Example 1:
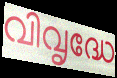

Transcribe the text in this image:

വിവൃദ്ധേ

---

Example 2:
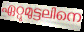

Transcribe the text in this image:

ഏറ്റുമുട്ടലിനെ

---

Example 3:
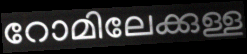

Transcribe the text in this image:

റോമിലേക്കുള്ള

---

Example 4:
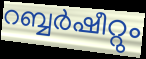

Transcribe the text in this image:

റബ്ബർഷീറ്റും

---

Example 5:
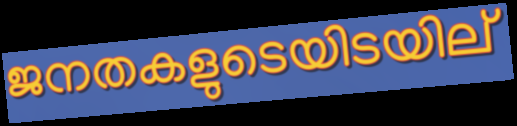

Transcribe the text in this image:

ജനതകളുടെയിടയില്